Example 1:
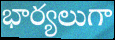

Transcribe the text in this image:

భార్యలుగా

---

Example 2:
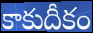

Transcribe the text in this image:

కాకుదీకం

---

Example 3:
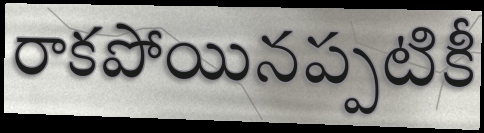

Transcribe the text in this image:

రాకపోయినప్పటికీ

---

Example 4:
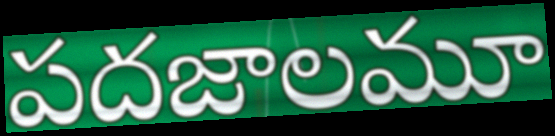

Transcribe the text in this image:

పదజాలమూ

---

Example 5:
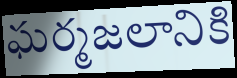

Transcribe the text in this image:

ఘర్మజలానికి